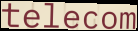
telecom